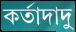
কর্তাদাদু